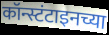
कॉन्स्टंटाइनच्या